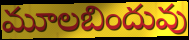
మూలబిందువు